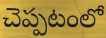
చెప్పటంలో